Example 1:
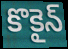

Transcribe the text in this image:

కొకైన్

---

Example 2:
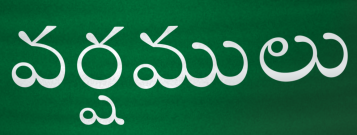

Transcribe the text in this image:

వర్షములు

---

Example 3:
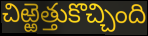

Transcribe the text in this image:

చిఱ్ఱెత్తుకొచ్చింది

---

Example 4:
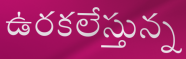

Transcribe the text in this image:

ఉరకలేస్తున్న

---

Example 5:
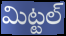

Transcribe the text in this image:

మిట్టల్